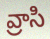
వ్రాసి